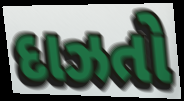
દાઝતો